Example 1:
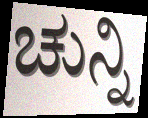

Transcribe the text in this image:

ಚುನ್ನಿ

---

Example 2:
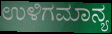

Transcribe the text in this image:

ಉಳಿಗಮಾನ್ಯ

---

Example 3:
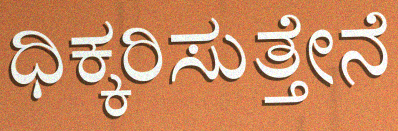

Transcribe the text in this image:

ಧಿಕ್ಕರಿಸುತ್ತೇನೆ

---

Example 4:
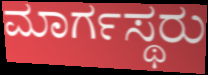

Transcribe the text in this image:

ಮಾರ್ಗಸ್ಥರು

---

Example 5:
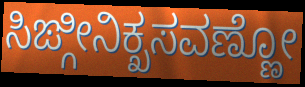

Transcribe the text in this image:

ಸಿಙ್ಗೀನಿಕ್ಖಸವಣ್ಣೋ